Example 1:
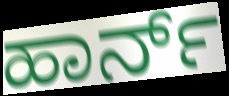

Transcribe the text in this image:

ಹಾರ್ನ್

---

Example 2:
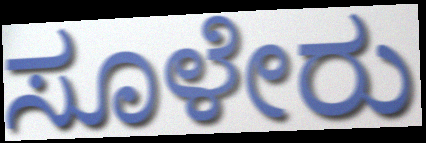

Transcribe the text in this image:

ಸೂಳೇರು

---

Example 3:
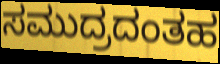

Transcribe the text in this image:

ಸಮುದ್ರದಂತಹ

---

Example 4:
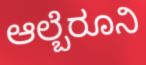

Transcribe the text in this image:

ಆಲ್ಬೆರೂನಿ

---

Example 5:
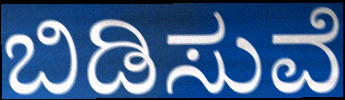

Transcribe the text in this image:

ಬಿಡಿಸುವೆ